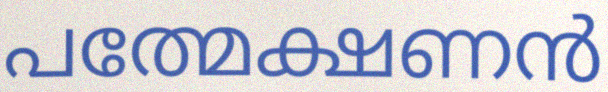
പത്മേക്ഷണൻ